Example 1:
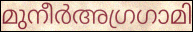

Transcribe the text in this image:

മുനീർഅഗ്രഗാമി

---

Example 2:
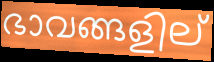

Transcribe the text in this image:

ഭാവങ്ങളില്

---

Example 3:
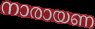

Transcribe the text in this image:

നാരായണ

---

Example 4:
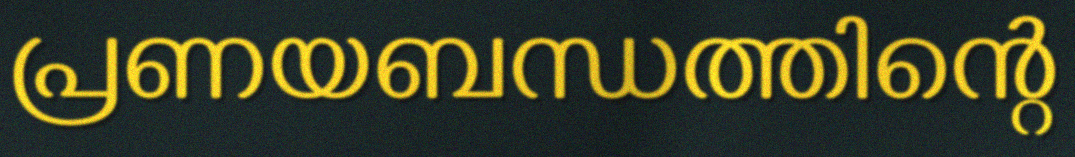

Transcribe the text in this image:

പ്രണയബന്ധത്തിന്റെ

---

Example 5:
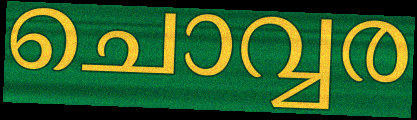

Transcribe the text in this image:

ചൊവ്വര